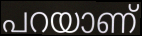
പറയാണ്